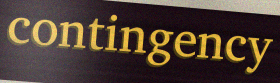
contingency